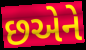
છએને